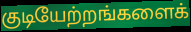
குடியேற்றங்களைக்